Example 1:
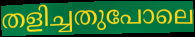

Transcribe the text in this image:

തളിച്ചതുപോലെ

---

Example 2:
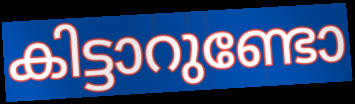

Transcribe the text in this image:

കിട്ടാറുണ്ടോ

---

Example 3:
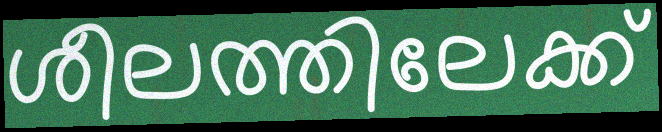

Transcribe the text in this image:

ശീലത്തിലേക്ക്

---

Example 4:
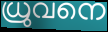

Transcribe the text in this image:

ധ്രുവനെ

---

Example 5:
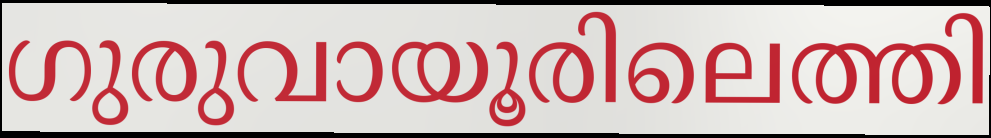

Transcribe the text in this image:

ഗുരുവായൂരിലെത്തി